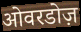
ओवरडोज़